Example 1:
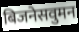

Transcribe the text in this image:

बिजनेसवुमन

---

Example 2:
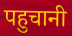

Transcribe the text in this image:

पहुचानी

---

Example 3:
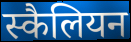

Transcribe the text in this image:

स्कैलियन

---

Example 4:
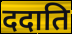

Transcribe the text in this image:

ददाति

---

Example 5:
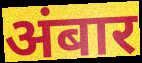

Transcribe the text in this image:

अंबार